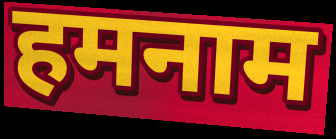
हमनाम